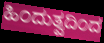
ಹಿಂದುತ್ವದಿಂದ